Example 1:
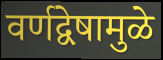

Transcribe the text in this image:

वर्णद्वेषामुळे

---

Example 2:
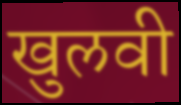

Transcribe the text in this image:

खुलवी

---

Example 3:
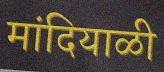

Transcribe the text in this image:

मांदियाळी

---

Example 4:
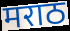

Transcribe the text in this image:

मराठ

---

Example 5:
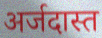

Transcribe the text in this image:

अर्जदास्त